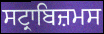
ਸਟ੍ਰਾਬਿਜ਼ਮਸ